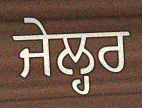
ਜੇਲ੍ਹਰ